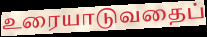
உரையாடுவதைப்